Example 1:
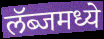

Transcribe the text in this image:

लॅब्जमध्ये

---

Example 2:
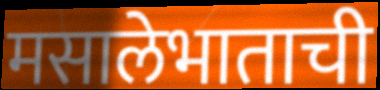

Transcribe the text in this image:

मसालेभाताची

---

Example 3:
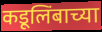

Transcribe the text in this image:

कडूलिंबाच्या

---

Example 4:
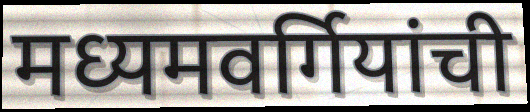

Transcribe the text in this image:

मध्यमवर्गियांची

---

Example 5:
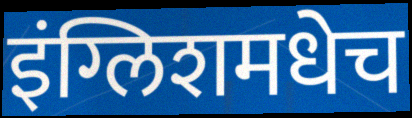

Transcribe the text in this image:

इंग्लिशमधेच